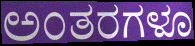
ಅಂತರಗಳೂ